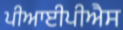
ਪੀਆਈਪੀਐਸ